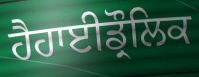
ਹੈਹਾਈਡ੍ਰੌਲਿਕ